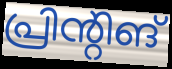
പ്രിന്റിങ്